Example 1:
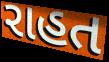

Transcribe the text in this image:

રાહત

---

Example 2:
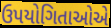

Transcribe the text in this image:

ઉપયોગિતાઓએ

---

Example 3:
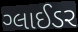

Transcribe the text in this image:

ગ્લાઈડર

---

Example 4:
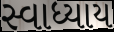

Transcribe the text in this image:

સ્વાધ્યાય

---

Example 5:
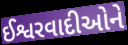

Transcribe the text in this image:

ઈશ્વરવાદીઓને